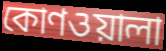
কোণওয়ালা